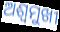
ଅଶ୍ୱମୁଖୀ